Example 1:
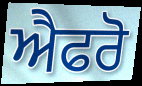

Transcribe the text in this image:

ਐਫਰੋ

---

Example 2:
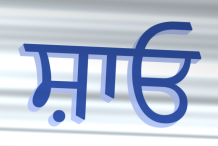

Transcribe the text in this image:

ਸ਼ਾਓ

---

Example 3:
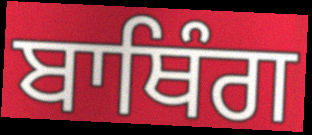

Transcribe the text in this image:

ਬਾਥਿੰਗ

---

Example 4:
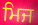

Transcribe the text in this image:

ਮਿਜ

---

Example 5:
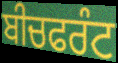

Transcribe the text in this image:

ਬੀਚਫਰੰਟ